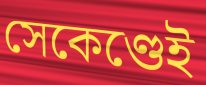
সেকেণ্ডেই